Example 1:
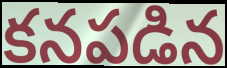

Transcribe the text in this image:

కనపడిన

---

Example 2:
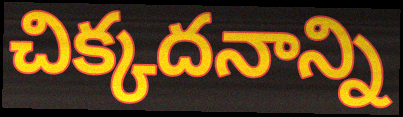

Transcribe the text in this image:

చిక్కదనాన్ని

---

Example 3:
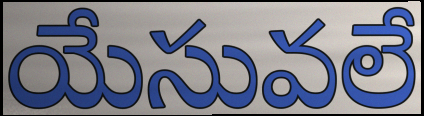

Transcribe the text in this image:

యేసువలే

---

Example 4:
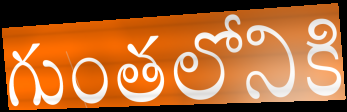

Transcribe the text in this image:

గుంతలోనికి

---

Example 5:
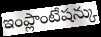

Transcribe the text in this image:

ఇంప్లాంటేషన్కు